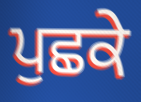
ਪੁਛਕੇ